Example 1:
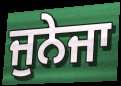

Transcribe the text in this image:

ਜੁਨੇਜਾ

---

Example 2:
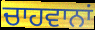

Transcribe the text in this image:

ਚਾਹਵਾਨਾਂ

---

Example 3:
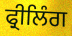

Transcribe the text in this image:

ਫ੍ਰੀਲਿੰਗ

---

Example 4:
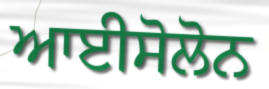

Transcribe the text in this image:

ਆਈਸੋਲੋਨ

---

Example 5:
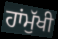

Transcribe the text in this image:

ਹਾਂਮੁੱਖੀ